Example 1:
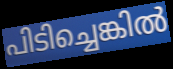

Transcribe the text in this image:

പിടിച്ചെങ്കിൽ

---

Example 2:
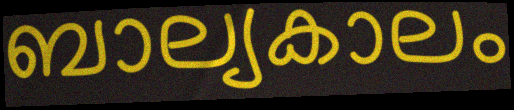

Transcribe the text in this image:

ബാല്യകാലം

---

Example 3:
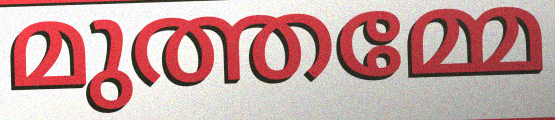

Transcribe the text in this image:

മുത്തമ്മേ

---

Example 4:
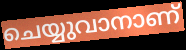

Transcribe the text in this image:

ചെയ്യുവാനാണ്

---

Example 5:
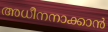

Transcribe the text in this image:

അധീനനാക്കാൻ